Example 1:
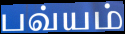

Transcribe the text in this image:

பவ்யம்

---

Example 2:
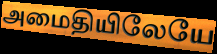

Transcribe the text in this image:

அமைதியிலேயே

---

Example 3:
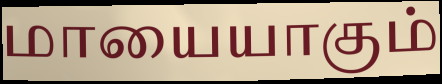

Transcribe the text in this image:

மாயையாகும்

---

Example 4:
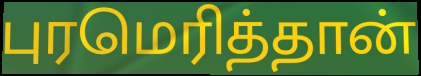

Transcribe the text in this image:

புரமெரித்தான்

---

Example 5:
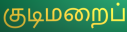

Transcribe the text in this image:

குடிமறைப்